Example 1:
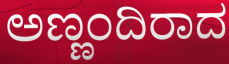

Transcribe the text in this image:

ಅಣ್ಣಂದಿರಾದ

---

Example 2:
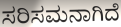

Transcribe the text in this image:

ಸರಿಸಮನಾಗಿದೆ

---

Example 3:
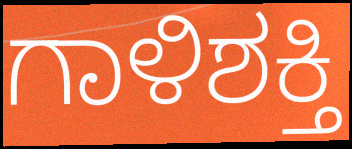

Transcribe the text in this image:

ಗಾಳಿಶಕ್ತಿ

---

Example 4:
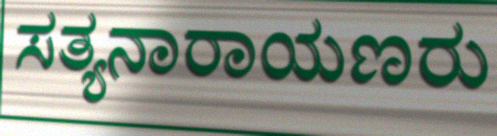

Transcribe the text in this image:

ಸತ್ಯನಾರಾಯಣರು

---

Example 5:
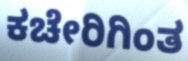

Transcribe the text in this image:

ಕಚೇರಿಗಿಂತ